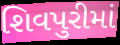
શિવપુરીમાં